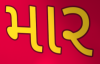
માર